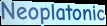
Neoplatonic